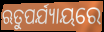
ଋତୁପର୍ଯ୍ୟାୟରେ